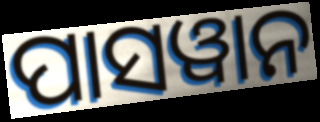
ପାସୱାନ